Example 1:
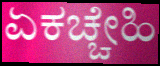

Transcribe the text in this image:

ಏಕಚ್ಚೇಹಿ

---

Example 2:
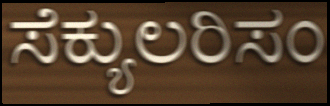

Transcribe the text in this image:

ಸೆಕ್ಯುಲರಿಸಂ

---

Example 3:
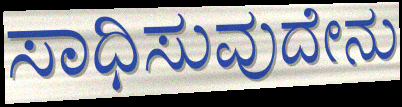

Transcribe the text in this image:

ಸಾಧಿಸುವುದೇನು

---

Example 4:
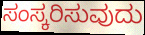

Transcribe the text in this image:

ಸಂಸ್ಕರಿಸುವುದು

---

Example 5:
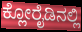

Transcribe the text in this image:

ಕ್ಲೋರೈಡಿನಲ್ಲಿ